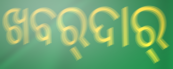
ଖବର୍‍ଦାର୍